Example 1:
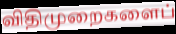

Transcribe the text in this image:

விதிமுறைகளைப்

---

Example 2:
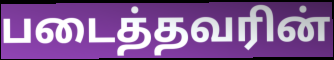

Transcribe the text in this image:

படைத்தவரின்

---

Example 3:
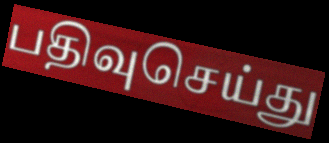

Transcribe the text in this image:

பதிவுசெய்து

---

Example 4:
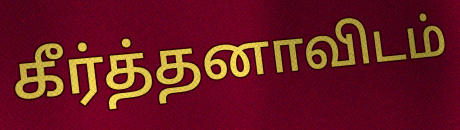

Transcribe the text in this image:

கீர்த்தனாவிடம்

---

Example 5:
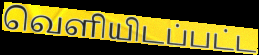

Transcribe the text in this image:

வெளியிடப்பட்ட